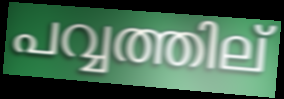
പവ്വത്തില്